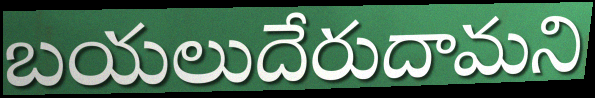
బయలుదేరుదామని